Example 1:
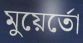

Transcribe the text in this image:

মুয়ের্তো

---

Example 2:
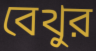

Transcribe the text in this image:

বেথুর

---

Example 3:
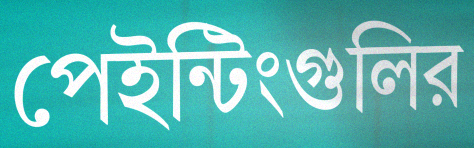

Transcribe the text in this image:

পেইন্টিংগুলির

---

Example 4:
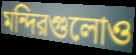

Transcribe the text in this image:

মন্দিরগুলোও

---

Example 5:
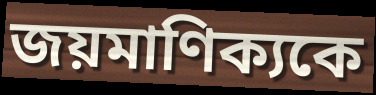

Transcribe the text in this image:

জয়মাণিক্যকে